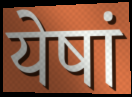
येषां